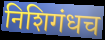
निशिगंधच